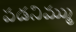
పడనిమ్ము